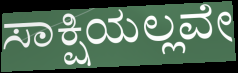
ಸಾಕ್ಷಿಯಲ್ಲವೇ